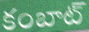
కంబాట్